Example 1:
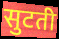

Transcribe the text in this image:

सुटती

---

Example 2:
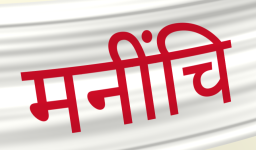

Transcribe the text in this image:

मनींचि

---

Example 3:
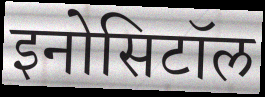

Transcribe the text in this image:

इनोसिटॉल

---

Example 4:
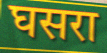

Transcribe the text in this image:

घसरा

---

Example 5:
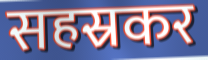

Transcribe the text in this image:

सहस्रकर